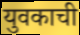
युवकाची